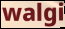
walgi